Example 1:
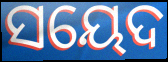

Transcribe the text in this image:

ସୟେଦ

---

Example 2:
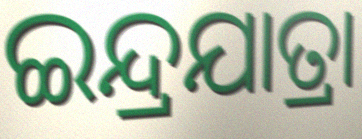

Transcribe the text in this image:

ଇନ୍ଦ୍ରଯାତ୍ରା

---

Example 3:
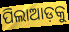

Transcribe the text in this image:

ପିଲାଆଡ଼କୁ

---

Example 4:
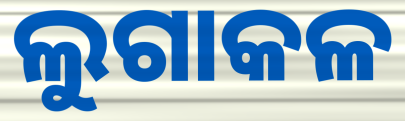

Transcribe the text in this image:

ଲୁଗାକଳ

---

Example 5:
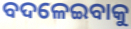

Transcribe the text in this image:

ବଦଳେଇବାକୁ